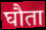
घौता